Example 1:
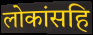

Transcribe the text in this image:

लोकांसहि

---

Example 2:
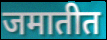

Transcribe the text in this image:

जमातीत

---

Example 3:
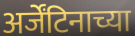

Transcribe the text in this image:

अर्जेंटिनाच्या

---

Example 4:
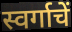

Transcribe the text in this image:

स्वर्गाचें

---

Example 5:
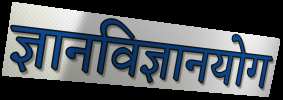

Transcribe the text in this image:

ज्ञानविज्ञानयोग